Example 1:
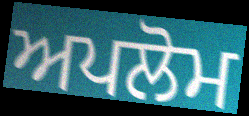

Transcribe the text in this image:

ਅਪਲੋਮ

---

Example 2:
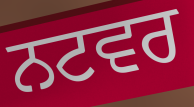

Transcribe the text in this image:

ਨਟਵਰ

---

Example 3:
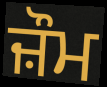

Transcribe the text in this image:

ਜ਼ੌਮ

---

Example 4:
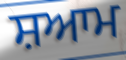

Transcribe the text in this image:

ਸ਼ਆਮ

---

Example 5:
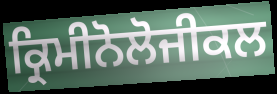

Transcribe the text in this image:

ਕ੍ਰਿਮੀਨੋਲੋਜੀਕਲ